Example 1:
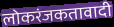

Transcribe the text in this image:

लोकरंजकतावादी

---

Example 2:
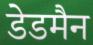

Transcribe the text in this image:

डेडमैन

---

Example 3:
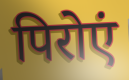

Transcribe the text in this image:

पिरोएं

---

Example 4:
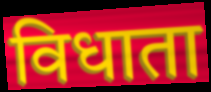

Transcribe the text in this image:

विधाता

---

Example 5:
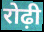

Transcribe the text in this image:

रोढ़ी